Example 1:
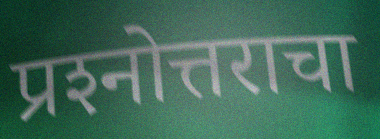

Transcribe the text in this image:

प्रश्‍नोत्तराचा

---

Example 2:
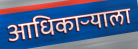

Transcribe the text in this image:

आधिकाऱ्याला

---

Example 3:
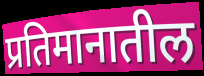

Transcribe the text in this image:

प्रतिमानातील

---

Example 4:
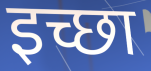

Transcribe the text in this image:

इच्छा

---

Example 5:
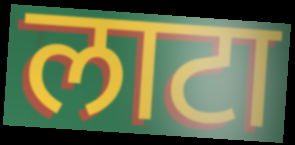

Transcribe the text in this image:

लाटा